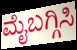
ಮೈಬಗ್ಗಿಸಿ